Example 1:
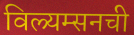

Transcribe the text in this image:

विल्यम्सनची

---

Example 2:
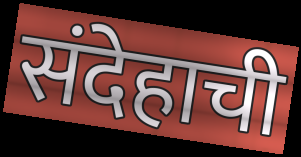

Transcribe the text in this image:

संदेहाची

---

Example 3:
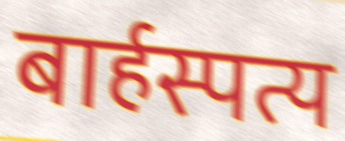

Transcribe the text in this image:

बार्हस्पत्य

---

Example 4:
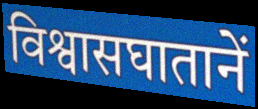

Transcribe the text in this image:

विश्वासघातानें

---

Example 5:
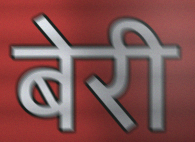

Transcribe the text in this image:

बेरी